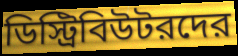
ডিস্ট্রিবিউটরদের